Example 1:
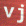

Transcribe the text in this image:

vj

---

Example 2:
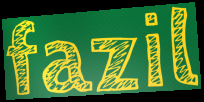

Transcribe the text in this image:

fazil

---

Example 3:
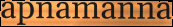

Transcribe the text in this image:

apnamanna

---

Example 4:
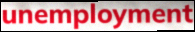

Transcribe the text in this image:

unemployment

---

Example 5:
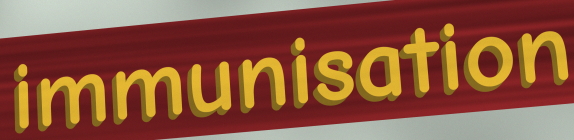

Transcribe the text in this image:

immunisation